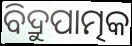
ବିଦ୍ରୁପାତ୍ମକ